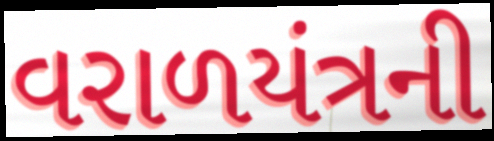
વરાળયંત્રની